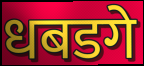
धबडगे